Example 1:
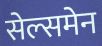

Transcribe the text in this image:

सेल्समेन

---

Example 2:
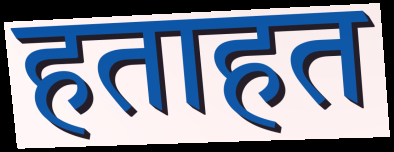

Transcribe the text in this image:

हताहत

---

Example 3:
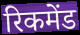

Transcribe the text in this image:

रिकमेंड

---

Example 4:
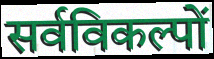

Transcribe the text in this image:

सर्वविकल्पों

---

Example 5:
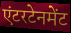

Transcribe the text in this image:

एंटरटेनमेंट